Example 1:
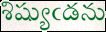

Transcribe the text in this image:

శిష్యుఁడను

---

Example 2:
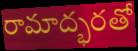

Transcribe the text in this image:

రామాద్భరతో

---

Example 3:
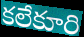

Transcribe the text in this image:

కలేకూరి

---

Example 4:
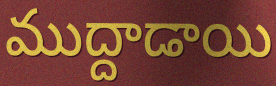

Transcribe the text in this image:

ముద్దాడాయి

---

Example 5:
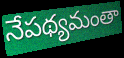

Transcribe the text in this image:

నేపథ్యమంతా